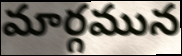
మార్గమున